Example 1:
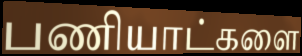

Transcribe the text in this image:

பணியாட்களை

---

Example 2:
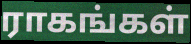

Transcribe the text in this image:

ராகங்கள்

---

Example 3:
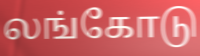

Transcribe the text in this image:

லங்கோடு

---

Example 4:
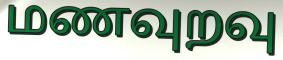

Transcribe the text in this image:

மணவுறவு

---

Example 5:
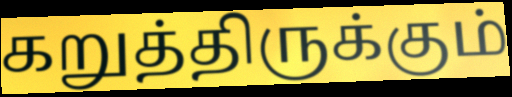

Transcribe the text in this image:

கறுத்திருக்கும்